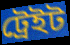
ট্রেইট